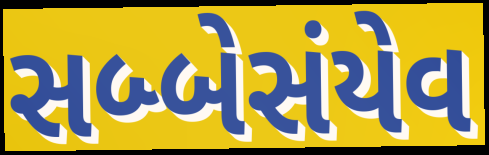
સબ્બેસંયેવ